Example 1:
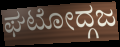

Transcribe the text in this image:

ಘಟೋದ್ಗಜ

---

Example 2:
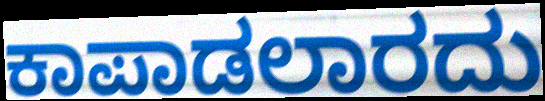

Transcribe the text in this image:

ಕಾಪಾಡಲಾರದು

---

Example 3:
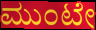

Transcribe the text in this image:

ಮುಂಟೇ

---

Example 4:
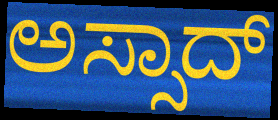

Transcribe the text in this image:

ಅಸ್ಸಾದ್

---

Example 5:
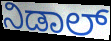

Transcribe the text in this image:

ನಿಡಾಲ್